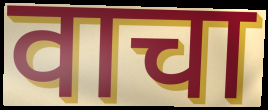
वाचा